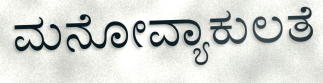
ಮನೋವ್ಯಾಕುಲತೆ